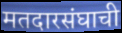
मतदारसंघाची